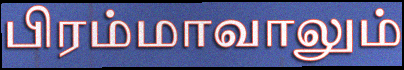
பிரம்மாவாலும்